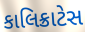
કાલિક્રાટેસ